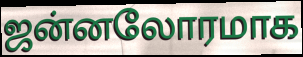
ஜன்னலோரமாக